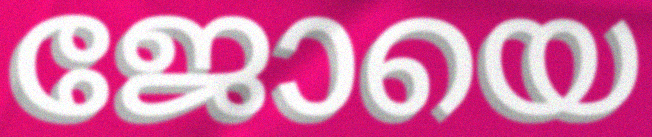
ജോയെ